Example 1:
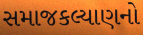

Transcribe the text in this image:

સમાજકલ્યાણનો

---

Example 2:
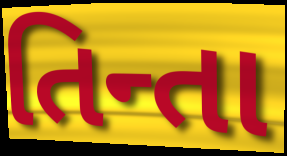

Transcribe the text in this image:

તિન્તા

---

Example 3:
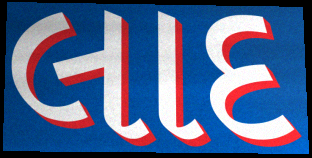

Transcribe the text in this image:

લાદ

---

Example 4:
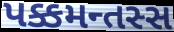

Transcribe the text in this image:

પક્કમન્તસ્સ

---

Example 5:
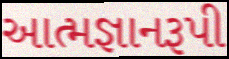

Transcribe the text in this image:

આત્મજ્ઞાનરૂપી